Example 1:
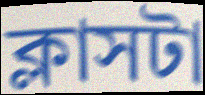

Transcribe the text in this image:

ক্লাসটা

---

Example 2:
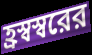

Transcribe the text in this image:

হ্রস্বস্বরের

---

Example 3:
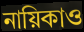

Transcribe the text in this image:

নায়িকাও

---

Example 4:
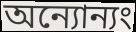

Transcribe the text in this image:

অন্যোন্যং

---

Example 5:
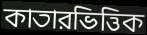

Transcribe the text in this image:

কাতারভিত্তিক